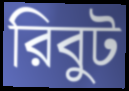
রিবুট